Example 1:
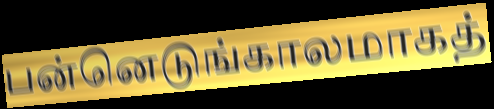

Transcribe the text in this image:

பன்னெடுங்காலமாகத்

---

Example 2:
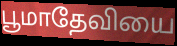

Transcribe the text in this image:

பூமாதேவியை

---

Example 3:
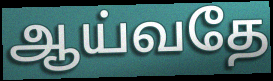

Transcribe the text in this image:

ஆய்வதே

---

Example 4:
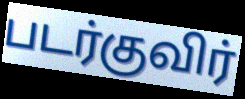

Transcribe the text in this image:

படர்குவிர்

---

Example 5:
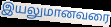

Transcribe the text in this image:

இயலுமானவரை